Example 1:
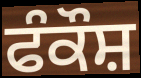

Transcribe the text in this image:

ਫੰਕੌਸ਼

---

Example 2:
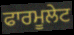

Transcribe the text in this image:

ਫਾਰਮੂਲੇਟ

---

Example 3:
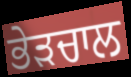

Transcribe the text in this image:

ਭੇੜਚਾਲ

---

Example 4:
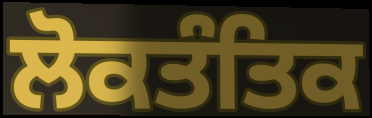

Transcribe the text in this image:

ਲੋਕਤੰਤਿਕ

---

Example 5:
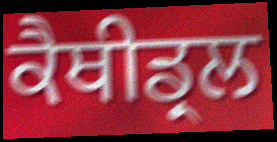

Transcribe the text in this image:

ਕੈਥੀਡ੍ਰਲ